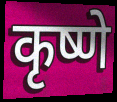
कृष्णे